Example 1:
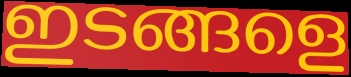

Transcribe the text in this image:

ഇടങ്ങളെ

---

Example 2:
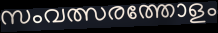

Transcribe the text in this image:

സംവത്സരത്തോളം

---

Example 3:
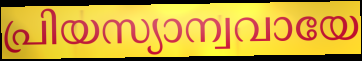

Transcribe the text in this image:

പ്രിയസ്യാന്വവായേ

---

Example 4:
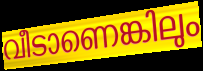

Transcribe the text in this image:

വീടാണെങ്കിലും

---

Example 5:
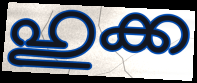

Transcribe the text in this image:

ഹുക്ക